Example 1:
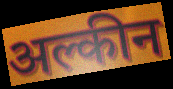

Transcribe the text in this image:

अल्कीन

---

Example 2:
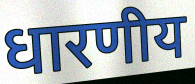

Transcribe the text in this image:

धारणीय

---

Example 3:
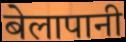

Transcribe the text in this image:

बेलापानी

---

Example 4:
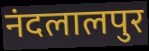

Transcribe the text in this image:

नंदलालपुर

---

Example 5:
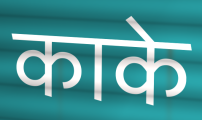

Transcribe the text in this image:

काके